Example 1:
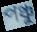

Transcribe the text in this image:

পঞ্চু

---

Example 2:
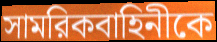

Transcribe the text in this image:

সামরিকবাহিনীকে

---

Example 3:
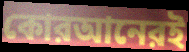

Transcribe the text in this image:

কোরআনেরই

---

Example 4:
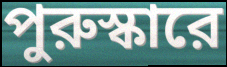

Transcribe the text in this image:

পুরুস্কারে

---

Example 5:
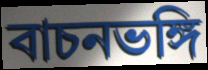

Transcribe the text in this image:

বাচনভঙ্গি